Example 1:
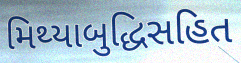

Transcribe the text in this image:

મિથ્યાબુદ્ધિસહિત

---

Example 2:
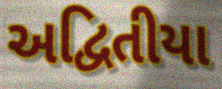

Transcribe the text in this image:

અદ્વિતીયા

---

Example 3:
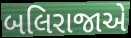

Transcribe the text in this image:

બલિરાજાએ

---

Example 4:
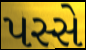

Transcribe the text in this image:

પસ્સે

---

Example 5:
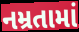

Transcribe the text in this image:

નમ્રતામાં